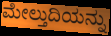
ಮೇಲ್ತುದಿಯನ್ನು